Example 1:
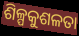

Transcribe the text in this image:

ଶିଳ୍ପକୁଶଳତା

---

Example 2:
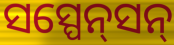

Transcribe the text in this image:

ସସ୍ପେନ୍‌ସନ୍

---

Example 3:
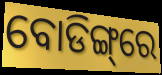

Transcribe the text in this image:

ବୋଡିଙ୍ଗ୍‌ରେ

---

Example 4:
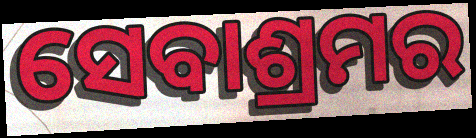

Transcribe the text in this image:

ସେବାଶ୍ରମର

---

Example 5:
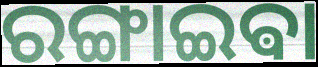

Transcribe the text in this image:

ରଙ୍ଗାଇଵା